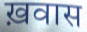
ख़वास